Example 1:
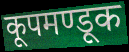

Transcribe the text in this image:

कूपमण्डूक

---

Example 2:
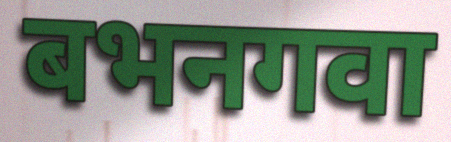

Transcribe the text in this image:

बभनगवा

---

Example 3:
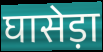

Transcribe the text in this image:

घासेड़ा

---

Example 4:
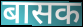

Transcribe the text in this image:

बासक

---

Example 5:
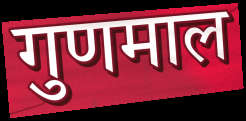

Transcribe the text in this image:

गुणमाल